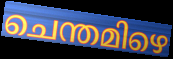
ചെന്തമിഴെ